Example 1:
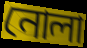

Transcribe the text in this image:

নোলা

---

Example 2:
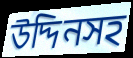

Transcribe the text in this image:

উদ্দিনসহ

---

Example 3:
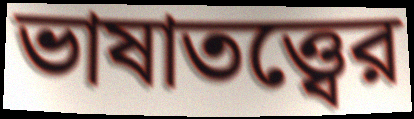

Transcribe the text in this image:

ভাষাতত্ত্বের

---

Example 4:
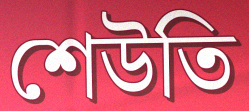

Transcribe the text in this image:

শেউতি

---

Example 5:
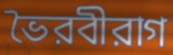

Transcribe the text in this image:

ভৈরবীরাগ